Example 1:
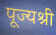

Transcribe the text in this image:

पूज्यश्री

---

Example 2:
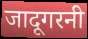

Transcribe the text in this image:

जादूगरनी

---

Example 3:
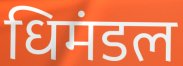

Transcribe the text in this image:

धिमंडल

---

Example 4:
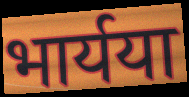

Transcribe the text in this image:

भार्यया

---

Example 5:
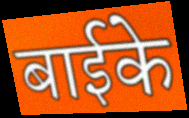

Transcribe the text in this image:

बाईके